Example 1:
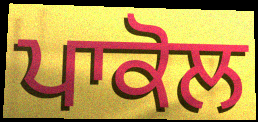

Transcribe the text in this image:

ਪਾਕੋਲ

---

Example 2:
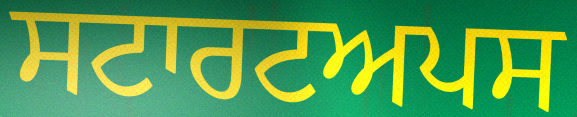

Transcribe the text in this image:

ਸਟਾਰਟਅਪਸ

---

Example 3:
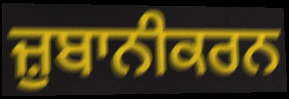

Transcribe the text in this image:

ਜ਼ੁਬਾਨੀਕਰਨ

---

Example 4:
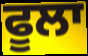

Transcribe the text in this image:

ਫੂਲਾ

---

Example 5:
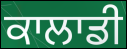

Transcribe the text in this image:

ਕਾਲਾਡੀ